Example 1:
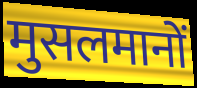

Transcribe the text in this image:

मुसलमानों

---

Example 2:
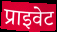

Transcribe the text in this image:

प्राइवेट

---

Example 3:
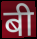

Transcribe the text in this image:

बी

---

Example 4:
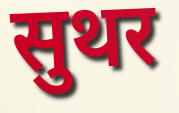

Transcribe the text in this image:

सुथर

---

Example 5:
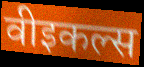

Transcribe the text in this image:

वीइकल्स